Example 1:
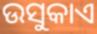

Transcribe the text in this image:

ଉସୁକାଏ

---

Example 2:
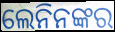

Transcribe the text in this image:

ଲେନିନଙ୍କର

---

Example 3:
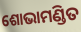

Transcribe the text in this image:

ଶୋଭାମଣ୍ଡିତ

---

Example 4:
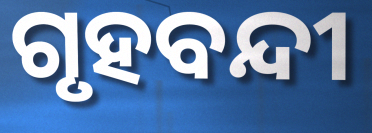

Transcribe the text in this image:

ଗୃହବନ୍ଦୀ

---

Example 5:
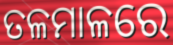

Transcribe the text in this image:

ତଳମାଳରେ